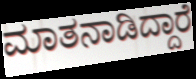
ಮಾತನಾಡಿದ್ದಾರೆ